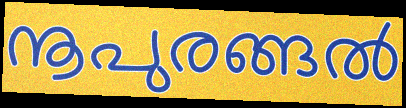
നൂപുരങ്ങൽ